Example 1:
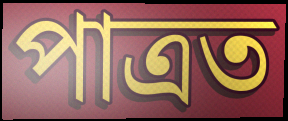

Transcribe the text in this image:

পাত্ৰত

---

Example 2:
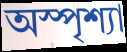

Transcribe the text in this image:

অস্পৃশ্যা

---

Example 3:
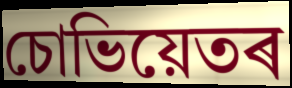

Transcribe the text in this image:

চোভিয়েতৰ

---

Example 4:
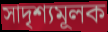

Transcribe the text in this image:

সাদৃশ্যমূলক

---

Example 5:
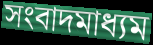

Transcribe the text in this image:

সংবাদমাধ্যম